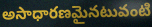
అసాధారణమైనటువంటి